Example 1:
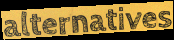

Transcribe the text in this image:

alternatives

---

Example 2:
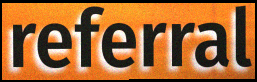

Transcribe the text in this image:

referral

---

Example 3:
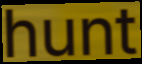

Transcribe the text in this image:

hunt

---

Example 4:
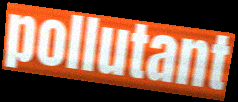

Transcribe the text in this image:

pollutant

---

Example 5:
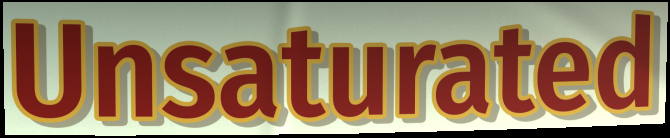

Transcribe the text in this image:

Unsaturated